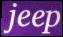
jeep